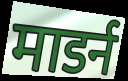
माडर्न